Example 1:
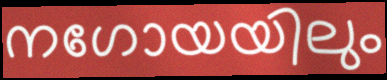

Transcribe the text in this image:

നഗോയയിലും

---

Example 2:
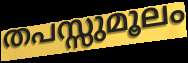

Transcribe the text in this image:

തപസ്സുമൂലം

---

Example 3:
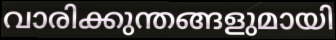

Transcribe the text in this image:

വാരിക്കുന്തങ്ങളുമായി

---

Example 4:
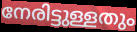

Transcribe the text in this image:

നേരിട്ടുള്ളതും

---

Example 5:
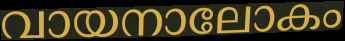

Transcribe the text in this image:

വായനാലോകം